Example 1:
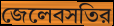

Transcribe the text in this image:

জেলেবসতির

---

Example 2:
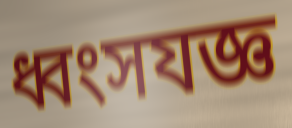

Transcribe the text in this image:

ধ্বংসযজ্ঞ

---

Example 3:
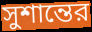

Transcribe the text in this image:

সুশান্তের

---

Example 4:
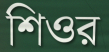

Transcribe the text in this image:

শিওর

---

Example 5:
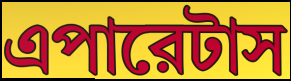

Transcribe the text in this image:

এপারেটাস